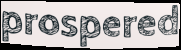
prospered